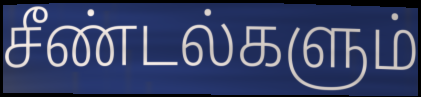
சீண்டல்களும்